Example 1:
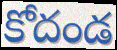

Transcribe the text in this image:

కోదండ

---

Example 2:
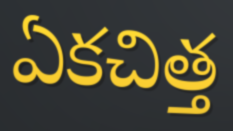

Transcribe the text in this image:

ఏకచిత్త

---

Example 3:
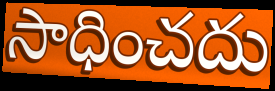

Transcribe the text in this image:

సాధించదు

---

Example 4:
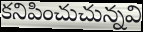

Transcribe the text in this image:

కనిపించుచున్నవి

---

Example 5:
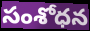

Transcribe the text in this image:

సంశోధన